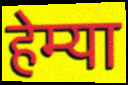
हेम्या